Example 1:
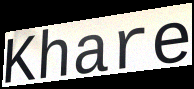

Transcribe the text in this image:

Khare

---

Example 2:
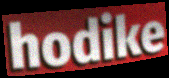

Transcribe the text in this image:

hodike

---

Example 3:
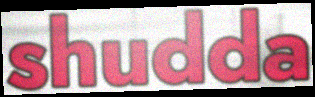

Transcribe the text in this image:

shudda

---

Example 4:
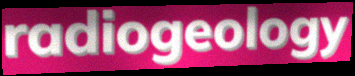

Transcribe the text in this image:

radiogeology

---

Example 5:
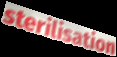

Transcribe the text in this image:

sterilisation